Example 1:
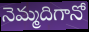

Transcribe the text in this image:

నెమ్మదిగానో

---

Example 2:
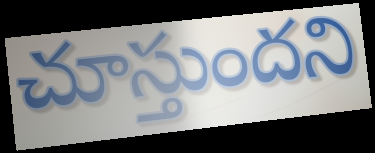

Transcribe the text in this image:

చూస్తుందని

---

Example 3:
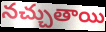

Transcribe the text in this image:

నచ్చుతాయి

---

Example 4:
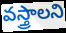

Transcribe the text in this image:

వస్త్రాలని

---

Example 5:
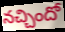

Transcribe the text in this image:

నచ్చిందో